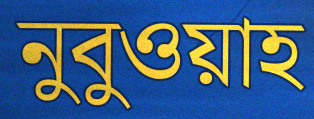
নুবুওয়াহ